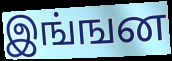
இங்ஙன